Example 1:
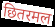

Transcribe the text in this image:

छितरमल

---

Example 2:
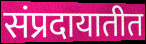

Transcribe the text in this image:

संप्रदायातीत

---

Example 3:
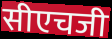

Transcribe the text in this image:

सीएचजी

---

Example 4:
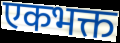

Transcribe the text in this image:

एकभक्त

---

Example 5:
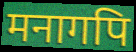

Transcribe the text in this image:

मनागपि